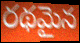
రథమైన